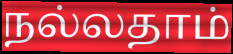
நல்லதாம்